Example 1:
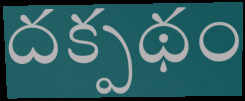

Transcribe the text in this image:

దక్పథం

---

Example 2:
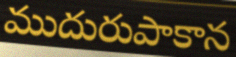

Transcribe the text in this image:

ముదురుపాకాన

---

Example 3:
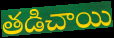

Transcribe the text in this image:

తడిచాయి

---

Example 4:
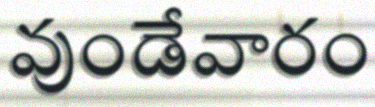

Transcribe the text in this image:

వుండేవారం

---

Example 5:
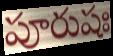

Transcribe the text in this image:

పూరుషః